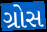
ગ્રોસ